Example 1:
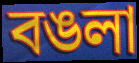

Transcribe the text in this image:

বঙলা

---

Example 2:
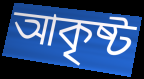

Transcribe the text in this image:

আকৃষ্ট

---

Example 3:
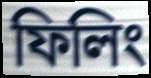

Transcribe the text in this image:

ফিলিং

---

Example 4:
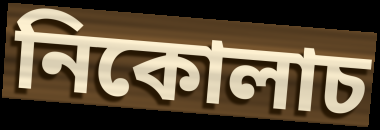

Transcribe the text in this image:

নিকোলাচ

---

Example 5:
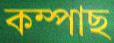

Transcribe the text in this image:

কম্পাছ